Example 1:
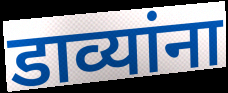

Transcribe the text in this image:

डाव्यांना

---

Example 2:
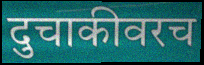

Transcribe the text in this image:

दुचाकीवरच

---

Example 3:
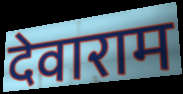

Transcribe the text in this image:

देवाराम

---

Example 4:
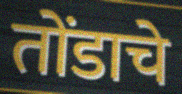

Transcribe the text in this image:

तोंडाचे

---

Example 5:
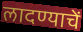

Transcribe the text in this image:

लादण्याचें